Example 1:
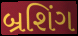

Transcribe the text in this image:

બ્રશિંગ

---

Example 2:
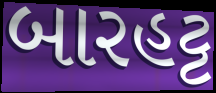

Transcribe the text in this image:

બારહટ્ટ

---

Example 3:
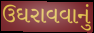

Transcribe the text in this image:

ઉઘરાવવાનું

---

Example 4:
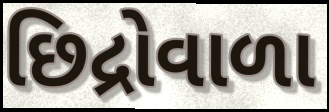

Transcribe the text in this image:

છિદ્રોવાળા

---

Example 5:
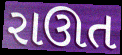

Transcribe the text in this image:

રાઊત